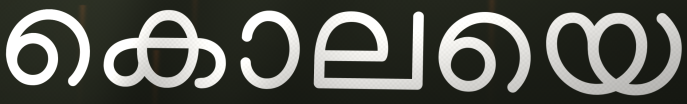
കൊലയെ